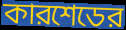
কারশেডের